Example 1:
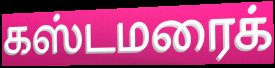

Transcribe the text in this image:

கஸ்டமரைக்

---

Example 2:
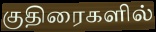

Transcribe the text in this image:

குதிரைகளில்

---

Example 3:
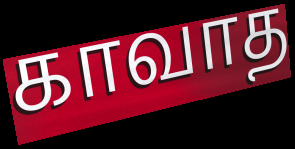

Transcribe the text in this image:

காவாத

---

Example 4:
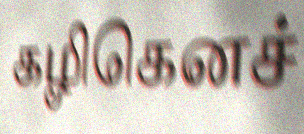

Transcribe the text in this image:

கழிகெனச்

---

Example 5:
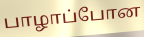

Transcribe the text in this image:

பாழாப்போன